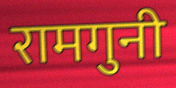
रामगुनी